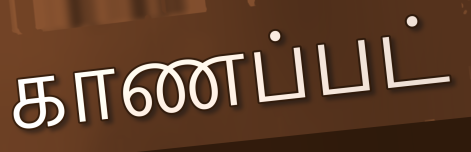
காணப்பட்